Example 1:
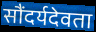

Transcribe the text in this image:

सौंदर्यदेवता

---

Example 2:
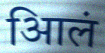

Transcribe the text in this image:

आिलं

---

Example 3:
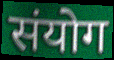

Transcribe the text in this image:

संयोग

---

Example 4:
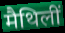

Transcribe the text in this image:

मैथिलीं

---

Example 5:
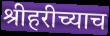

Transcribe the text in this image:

श्रीहरीच्याच